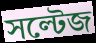
সল্টেজ